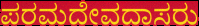
ಪರಮದೇವದಾಸರು